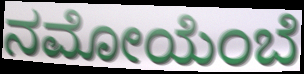
ನಮೋಯೆಂಬೆ